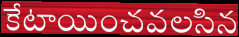
కేటాయించవలసిన